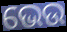
ଭେଉ